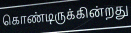
கொண்டிருக்கின்றது